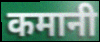
कमानी